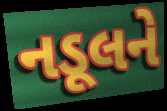
નડૂલને